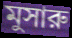
মুসারু